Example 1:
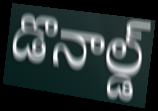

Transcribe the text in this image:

డొనాల్డ్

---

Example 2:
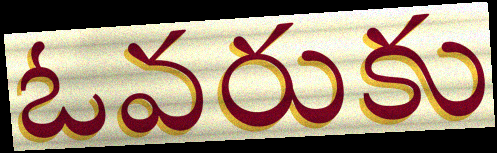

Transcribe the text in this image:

ఓవరుకు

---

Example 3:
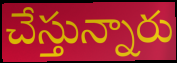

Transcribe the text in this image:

చేస్తున్నారు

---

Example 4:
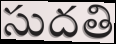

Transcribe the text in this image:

సుదతి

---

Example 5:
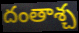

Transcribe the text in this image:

దంతాశ్చ